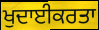
ਖੁਦਾਈਕਰਤਾ